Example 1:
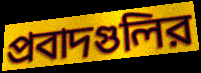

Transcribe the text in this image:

প্রবাদগুলির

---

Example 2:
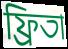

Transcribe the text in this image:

ফ্রিতা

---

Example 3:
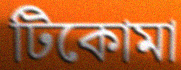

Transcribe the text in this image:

টিকোমা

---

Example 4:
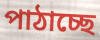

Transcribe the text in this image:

পাঠাচ্ছে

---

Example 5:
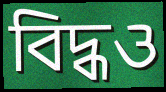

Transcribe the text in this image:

বিদ্ধও